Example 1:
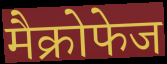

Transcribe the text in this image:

मैक्रोफेज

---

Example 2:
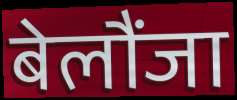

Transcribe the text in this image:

बेलौंजा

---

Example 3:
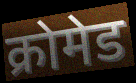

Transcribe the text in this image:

क्रोमेड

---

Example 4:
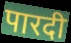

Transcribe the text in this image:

पारदी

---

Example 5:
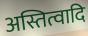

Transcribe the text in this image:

अस्तित्वादि